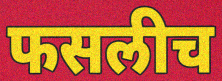
फसलीच